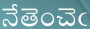
నేతెంచెఁ